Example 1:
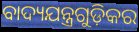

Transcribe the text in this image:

ବାଦ୍ୟଯନ୍ତ୍ରଗୁଡ଼ିକର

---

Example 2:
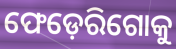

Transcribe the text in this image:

ଫେଡ଼େରିଗୋକୁ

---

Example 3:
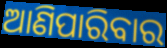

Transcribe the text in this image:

ଆଣିପାରିବାର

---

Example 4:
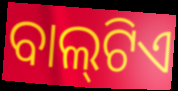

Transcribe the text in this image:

ବାଲ୍‍ଟିଏ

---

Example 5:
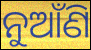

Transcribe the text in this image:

ନୁଆଁଣି